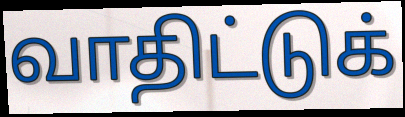
வாதிட்டுக்